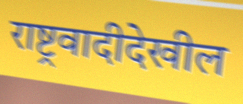
राष्ट्रवादीदेखील